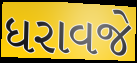
ધરાવજે